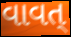
વાવત્